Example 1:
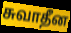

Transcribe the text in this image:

சுவாதீன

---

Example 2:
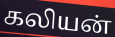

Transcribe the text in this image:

கலியன்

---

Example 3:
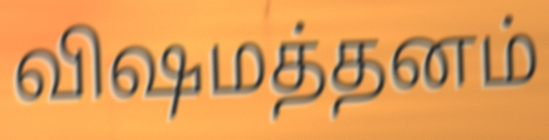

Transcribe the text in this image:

விஷமத்தனம்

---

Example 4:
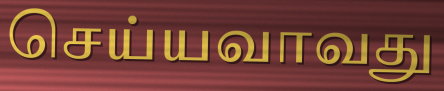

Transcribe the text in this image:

செய்யவாவது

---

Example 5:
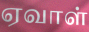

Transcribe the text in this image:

ஏவாள்